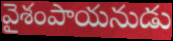
వైశంపాయనుడు